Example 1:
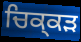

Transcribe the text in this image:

ਚਿਕ੍ਕੜ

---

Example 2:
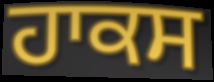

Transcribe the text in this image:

ਹਾਕਸ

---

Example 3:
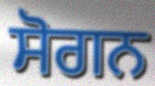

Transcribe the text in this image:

ਸੋਗਨ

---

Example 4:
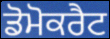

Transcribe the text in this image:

ਡੋਮੋਕਰੈਟ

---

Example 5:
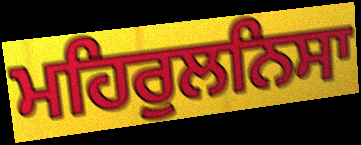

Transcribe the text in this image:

ਮਹਿਰੁਲਨਿਸਾ